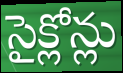
సైక్లోన్లు